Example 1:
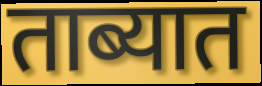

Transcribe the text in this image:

ताब्यात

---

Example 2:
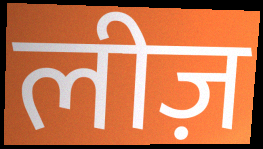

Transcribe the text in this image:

लीज़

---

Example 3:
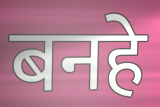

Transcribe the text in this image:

बनहे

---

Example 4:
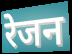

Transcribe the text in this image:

रेजन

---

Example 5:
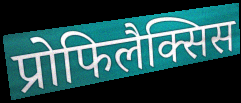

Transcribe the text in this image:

प्रोफिलैक्सिस